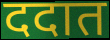
ददात